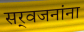
सर्वजनांना